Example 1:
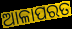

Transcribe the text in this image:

ଆଳାପରତ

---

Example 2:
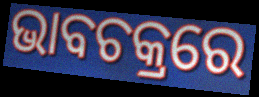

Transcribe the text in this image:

ଭାବଚକ୍ରରେ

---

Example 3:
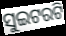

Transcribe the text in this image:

ସୁଇଟରଟି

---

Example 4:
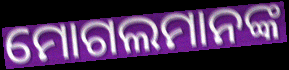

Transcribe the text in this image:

ମୋଗଲମାନଙ୍କ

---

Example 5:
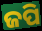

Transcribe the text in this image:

ଜପି